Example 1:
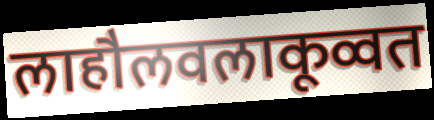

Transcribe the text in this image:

लाहौलवलाकूव्वत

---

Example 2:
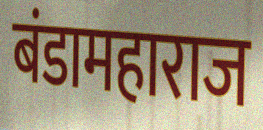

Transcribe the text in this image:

बंडामहाराज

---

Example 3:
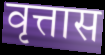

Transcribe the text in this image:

वृत्तास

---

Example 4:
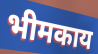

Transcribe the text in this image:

भीमकाय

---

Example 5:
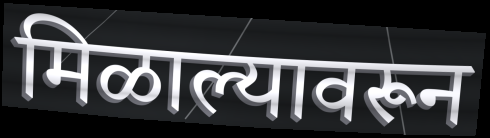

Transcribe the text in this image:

मिळाल्यावरून